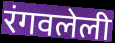
रंगवलेली